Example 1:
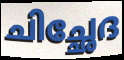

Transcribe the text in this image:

ചിച്ഛേദ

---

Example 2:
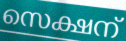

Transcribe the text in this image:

സെക്ഷന്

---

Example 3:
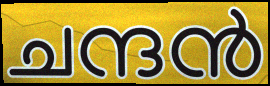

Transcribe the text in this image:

ചന്ദൻ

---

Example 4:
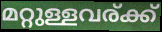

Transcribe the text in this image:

മറ്റുള്ളവര്ക്ക്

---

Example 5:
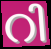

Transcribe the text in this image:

റി